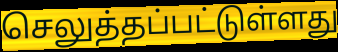
செலுத்தப்பட்டுள்ளது